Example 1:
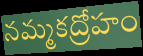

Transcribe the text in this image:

నమ్మకద్రోహం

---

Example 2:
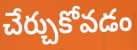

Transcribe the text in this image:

చేర్చుకోవడం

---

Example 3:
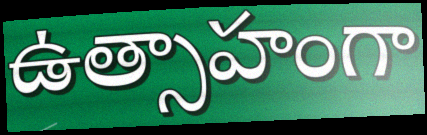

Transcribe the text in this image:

ఉత్సాహంగా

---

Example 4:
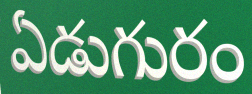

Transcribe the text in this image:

ఏడుగురం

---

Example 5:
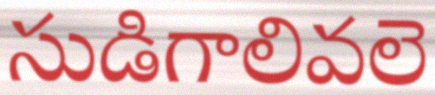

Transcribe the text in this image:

సుడిగాలివలె